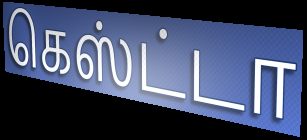
கெஸ்ட்டா